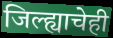
जिल्ह्याचेही